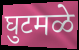
घुटमळे